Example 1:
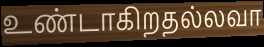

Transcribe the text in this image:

உண்டாகிறதல்லவா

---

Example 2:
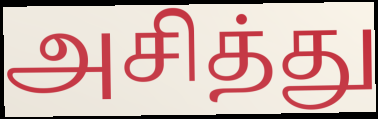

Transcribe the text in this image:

அசித்து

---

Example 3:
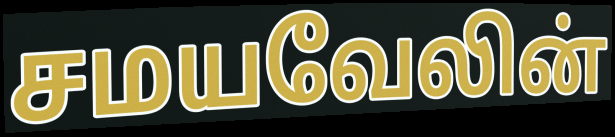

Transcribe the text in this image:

சமயவேலின்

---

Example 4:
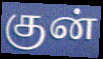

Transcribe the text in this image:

குன்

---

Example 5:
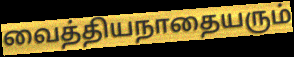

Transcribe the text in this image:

வைத்தியநாதையரும்